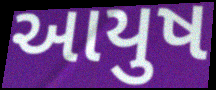
આયુષ